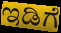
ಇಡಿಗೆ